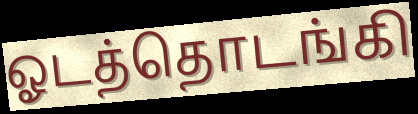
ஓடத்தொடங்கி